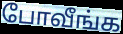
போவீங்க